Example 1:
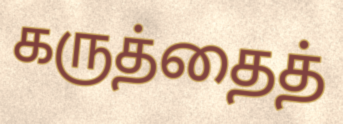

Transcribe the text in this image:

கருத்தைத்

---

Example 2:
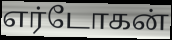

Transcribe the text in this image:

எர்டோகன்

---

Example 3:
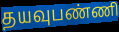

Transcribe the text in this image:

தயவுபண்ணி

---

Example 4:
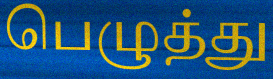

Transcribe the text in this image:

பெழுத்து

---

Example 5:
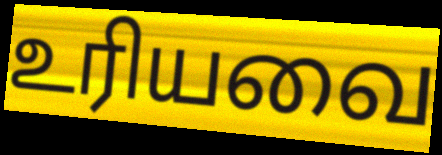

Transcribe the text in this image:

உரியவை